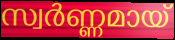
സ്വർണ്ണമായ്